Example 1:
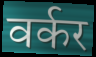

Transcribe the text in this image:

वर्कर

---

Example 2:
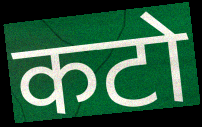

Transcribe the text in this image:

कटो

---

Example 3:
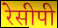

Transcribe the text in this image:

रेसीपी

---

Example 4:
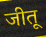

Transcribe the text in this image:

जीतू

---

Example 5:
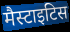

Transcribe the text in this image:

मैस्टाइटिस